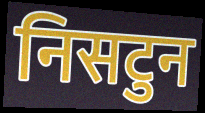
निसटुन